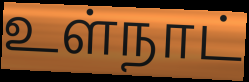
உள்நாட்